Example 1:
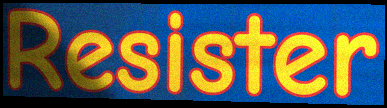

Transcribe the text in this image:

Resister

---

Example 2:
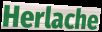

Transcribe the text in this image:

Herlache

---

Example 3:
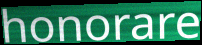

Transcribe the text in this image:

honorare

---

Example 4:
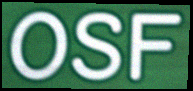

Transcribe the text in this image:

OSF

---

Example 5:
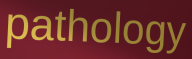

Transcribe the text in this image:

pathology